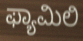
ಫ್ಯಾಮಿಲಿ